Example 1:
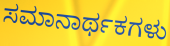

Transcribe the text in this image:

ಸಮಾನಾರ್ಥಕಗಳು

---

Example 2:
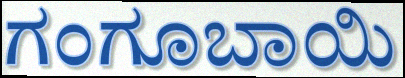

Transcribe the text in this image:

ಗಂಗೂಬಾಯಿ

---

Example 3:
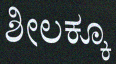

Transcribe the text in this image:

ಶೀಲಕ್ಕೂ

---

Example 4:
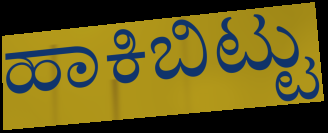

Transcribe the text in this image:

ಹಾಕಿಬಿಟ್ಟು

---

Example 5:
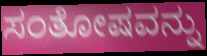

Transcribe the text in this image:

ಸಂತೋಷವನ್ನು